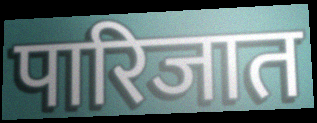
पारिजात